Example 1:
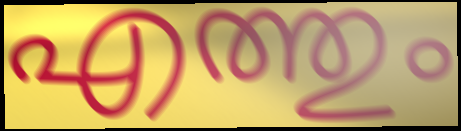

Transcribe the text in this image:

എത്തും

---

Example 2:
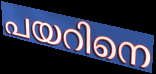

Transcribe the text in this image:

പയറിനെ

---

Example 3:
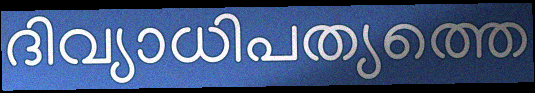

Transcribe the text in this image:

ദിവ്യാധിപത്യത്തെ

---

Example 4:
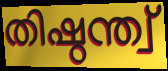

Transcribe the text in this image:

തിഷ്ഠന്ത്വ്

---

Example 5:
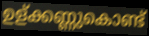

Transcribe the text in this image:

ഉള്ക്കണ്ണുകൊണ്ട്